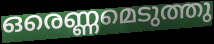
ഒരെണ്ണമെടുത്തു